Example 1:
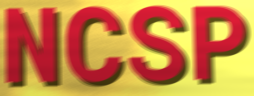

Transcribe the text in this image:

NCSP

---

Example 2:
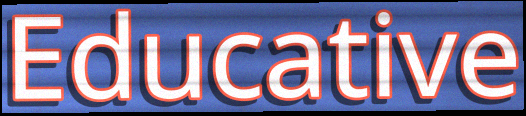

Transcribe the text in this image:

Educative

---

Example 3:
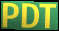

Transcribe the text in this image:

PDT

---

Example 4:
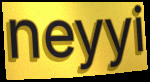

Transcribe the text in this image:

neyyi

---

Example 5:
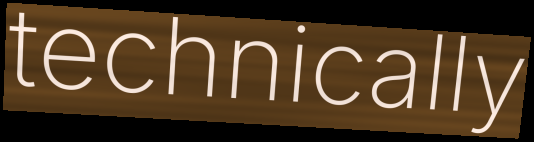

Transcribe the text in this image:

technically